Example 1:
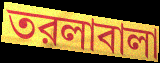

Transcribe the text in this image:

তরলাবালা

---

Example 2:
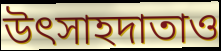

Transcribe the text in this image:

উৎসাহদাতাও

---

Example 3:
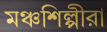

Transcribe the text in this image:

মঞ্চশিল্পীরা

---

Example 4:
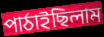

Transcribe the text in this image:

পাঠাইছিলাম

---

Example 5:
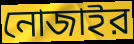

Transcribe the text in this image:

নোজাইর